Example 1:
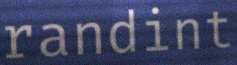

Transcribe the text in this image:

randint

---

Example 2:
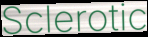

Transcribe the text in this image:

Sclerotic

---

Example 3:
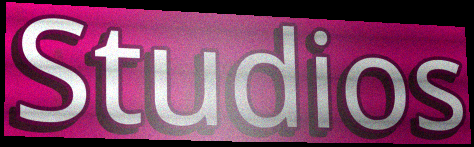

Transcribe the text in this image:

Studios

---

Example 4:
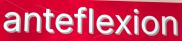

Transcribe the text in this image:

anteflexion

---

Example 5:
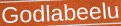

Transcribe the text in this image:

Godlabeelu